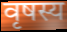
वृषस्य